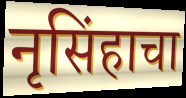
नृसिंहाचा